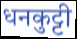
धनकुट्टी